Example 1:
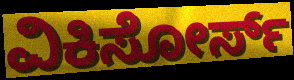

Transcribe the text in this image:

ವಿಕಿಸೋರ್ಸ್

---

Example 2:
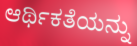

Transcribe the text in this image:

ಆರ್ಥಿಕತೆಯನ್ನು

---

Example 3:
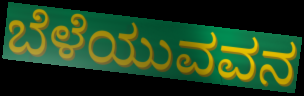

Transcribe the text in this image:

ಬೆಳೆಯುವವನ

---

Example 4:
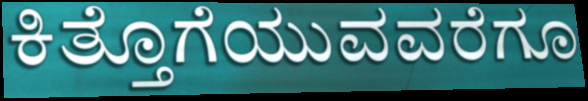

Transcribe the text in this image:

ಕಿತ್ತೊಗೆಯುವವರೆಗೂ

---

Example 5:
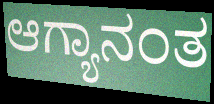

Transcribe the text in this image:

ಆಗ್ಯಾನಂತ